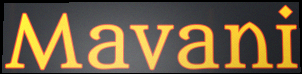
Mavani